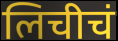
लिचीचं